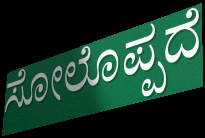
ಸೋಲೊಪ್ಪದೆ